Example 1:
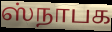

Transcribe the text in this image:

ஸ்நாபக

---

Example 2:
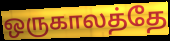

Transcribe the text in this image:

ஒருகாலத்தே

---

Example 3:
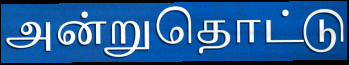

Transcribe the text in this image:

அன்றுதொட்டு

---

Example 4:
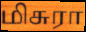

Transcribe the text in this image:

மிசுரா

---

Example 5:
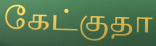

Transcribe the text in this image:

கேட்குதா